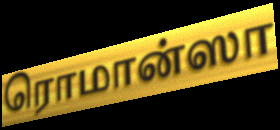
ரொமான்ஸா